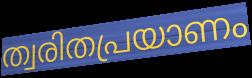
ത്വരിതപ്രയാണം